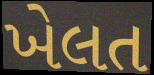
ખેલત